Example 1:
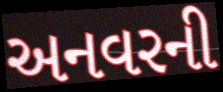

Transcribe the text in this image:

અનવરની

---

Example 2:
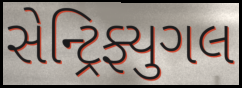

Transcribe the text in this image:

સેન્ટ્રિફ્યુગલ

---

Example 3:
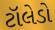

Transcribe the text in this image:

ટૉલેડો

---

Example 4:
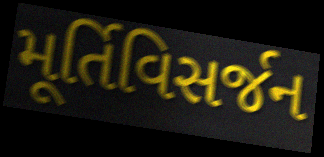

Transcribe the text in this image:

મૂર્તિવિસર્જન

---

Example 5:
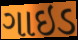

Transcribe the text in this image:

ગાઇડ